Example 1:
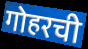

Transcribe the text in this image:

गोहरची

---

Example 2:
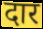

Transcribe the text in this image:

दार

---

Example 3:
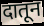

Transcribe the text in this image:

दातून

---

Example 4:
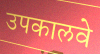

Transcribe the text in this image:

उपकालवे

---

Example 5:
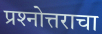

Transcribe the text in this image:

प्रश्‍नोत्तराचा